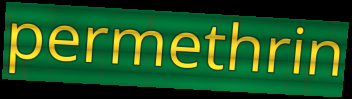
permethrin